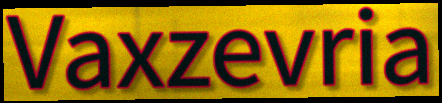
Vaxzevria